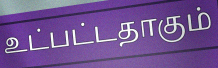
உட்பட்டதாகும்